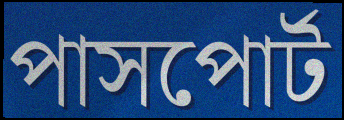
পাসপোর্ট